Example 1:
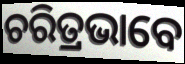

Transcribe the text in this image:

ଚରିତ୍ରଭାବେ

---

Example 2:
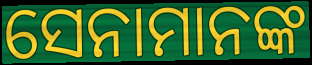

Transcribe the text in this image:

ସେନାମାନଙ୍କ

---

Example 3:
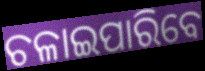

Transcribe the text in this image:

ଚଳାଇପାରିବେ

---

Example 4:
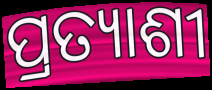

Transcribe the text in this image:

ପ୍ରତ୍ୟାଶୀ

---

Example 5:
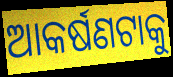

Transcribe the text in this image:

ଆକର୍ଷଣଟାକୁ